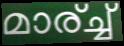
മാര്ച്ച്